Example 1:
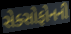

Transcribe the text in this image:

સેક્સોફોનની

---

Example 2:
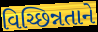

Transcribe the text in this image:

વિચ્છિન્નતાને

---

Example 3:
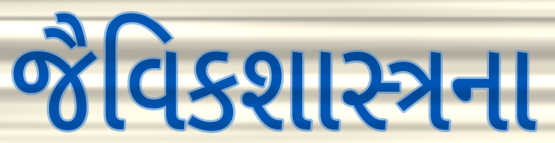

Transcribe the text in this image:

જૈવિકશાસ્ત્રના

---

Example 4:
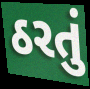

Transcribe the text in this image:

ઠરતું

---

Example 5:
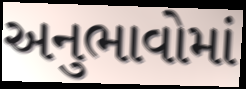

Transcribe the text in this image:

અનુભાવોમાં